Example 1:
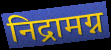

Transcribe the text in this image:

निद्रामग्न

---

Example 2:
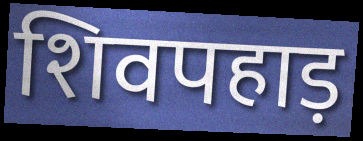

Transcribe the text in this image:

शिवपहाड़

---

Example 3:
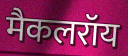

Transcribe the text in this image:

मैकलरॉय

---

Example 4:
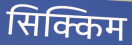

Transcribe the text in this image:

सिक्किम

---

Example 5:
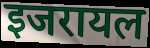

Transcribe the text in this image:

इजरायल